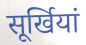
सूर्खियां